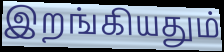
இறங்கியதும்